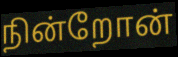
நின்றோன்